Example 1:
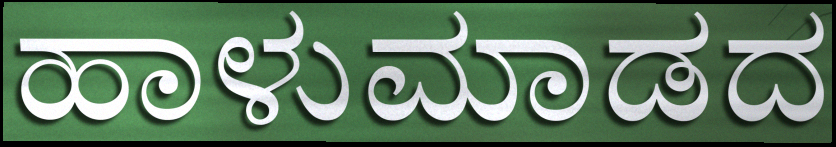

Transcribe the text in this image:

ಹಾಳುಮಾಡದ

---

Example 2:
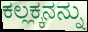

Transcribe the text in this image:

ಕಲ್ಲಕ್ಕನನ್ನು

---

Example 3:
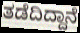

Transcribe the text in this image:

ತಡೆದಿದ್ದಾನೆ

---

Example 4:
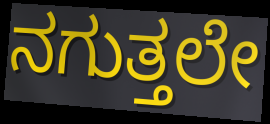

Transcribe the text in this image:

ನಗುತ್ತಲೇ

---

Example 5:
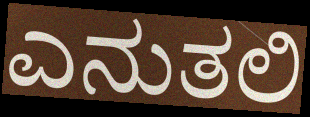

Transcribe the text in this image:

ಎನುತಲಿ